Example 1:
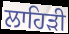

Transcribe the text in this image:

ਲਾਹਿੜੀ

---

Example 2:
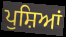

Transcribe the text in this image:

ਪੁਸ਼ਿਆਂ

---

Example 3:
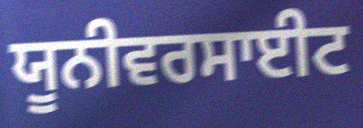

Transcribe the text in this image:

ਯੂਨੀਵਰਸਾਈਟ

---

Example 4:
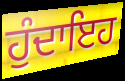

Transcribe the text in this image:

ਹੁੰਦਾਇਹ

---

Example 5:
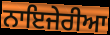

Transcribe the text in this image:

ਨਾਇਜੇਰੀਆ